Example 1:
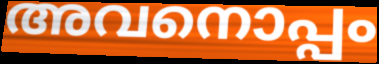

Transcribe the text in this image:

അവനൊപ്പം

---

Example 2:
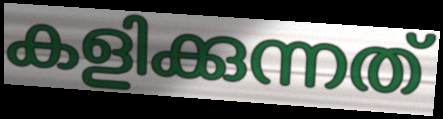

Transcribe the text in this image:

കളിക്കുന്നത്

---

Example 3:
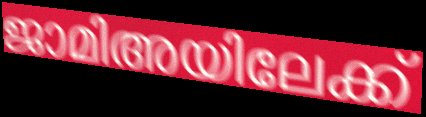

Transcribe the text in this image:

ജാമിഅയിലേക്ക്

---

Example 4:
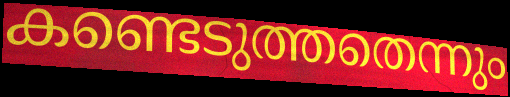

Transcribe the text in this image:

കണ്ടെടുത്തതെന്നും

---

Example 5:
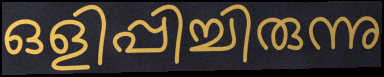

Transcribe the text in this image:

ഒളിപ്പിച്ചിരുന്നു